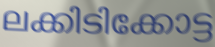
ലക്കിടിക്കോട്ട